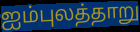
ஐம்புலத்தாறு